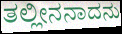
ತಲ್ಲೀನನಾದನು